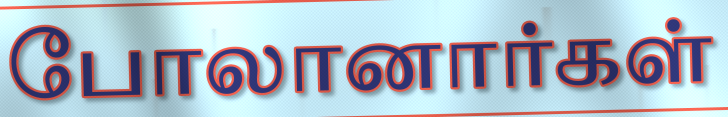
போலானார்கள்